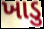
ખાડુ